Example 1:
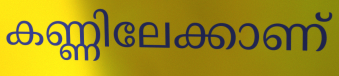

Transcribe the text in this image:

കണ്ണിലേക്കാണ്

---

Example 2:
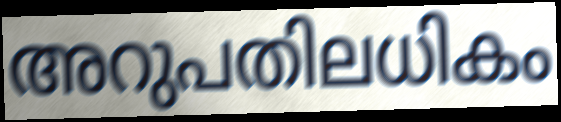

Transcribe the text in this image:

അറുപതിലധികം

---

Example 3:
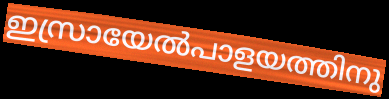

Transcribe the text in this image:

ഇസ്രായേൽപാളയത്തിനു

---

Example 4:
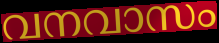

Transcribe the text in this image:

വനവാസം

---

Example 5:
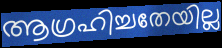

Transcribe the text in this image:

ആഗ്രഹിച്ചതേയില്ല